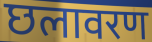
छलावरण